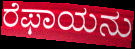
ರೆಫಾಯನು